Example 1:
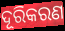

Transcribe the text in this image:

ଦୂରିକରଣ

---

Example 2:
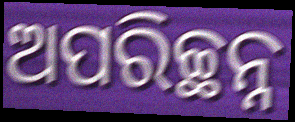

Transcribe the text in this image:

ଅପରିଚ୍ଛନ୍ନ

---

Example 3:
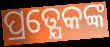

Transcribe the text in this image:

ପ୍ରତ୍ଯେକଙ୍କ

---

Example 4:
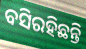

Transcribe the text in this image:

ବସିରହିଛନ୍ତି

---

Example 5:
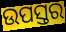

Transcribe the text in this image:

ଉପସ୍ତର